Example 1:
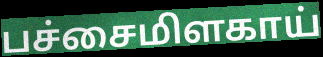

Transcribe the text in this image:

பச்சைமிளகாய்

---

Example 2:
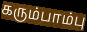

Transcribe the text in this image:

கரும்பாம்பு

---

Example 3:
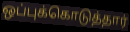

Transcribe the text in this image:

ஒப்புக்கொடுத்தார்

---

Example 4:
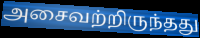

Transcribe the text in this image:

அசைவற்றிருந்தது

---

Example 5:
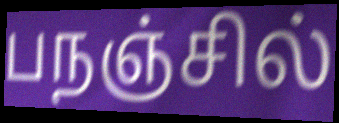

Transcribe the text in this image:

பநஞ்சில்